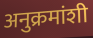
अनुक्रमांशी